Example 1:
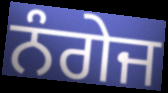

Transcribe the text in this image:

ਨੰਗੇਜ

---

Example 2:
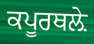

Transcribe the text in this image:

ਕਪੂਰਥਲ਼ੇ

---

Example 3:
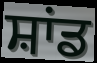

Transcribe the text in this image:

ਸ਼ਾਂਡ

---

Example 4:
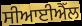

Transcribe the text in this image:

ਸੀਆਈਐੱਲ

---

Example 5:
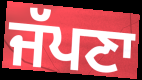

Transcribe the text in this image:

ਜੱਪਣਾ